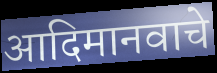
आदिमानवाचे